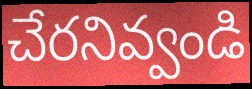
చేరనివ్వండి